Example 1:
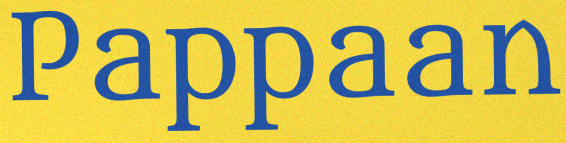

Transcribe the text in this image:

Pappaan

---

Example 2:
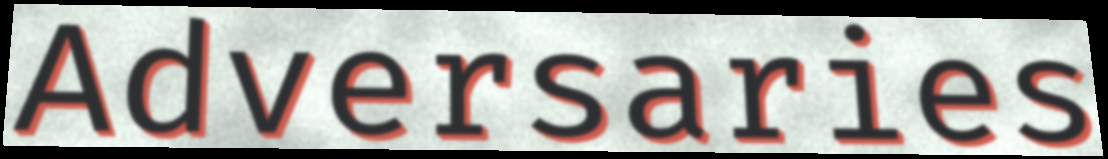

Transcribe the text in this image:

Adversaries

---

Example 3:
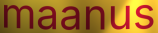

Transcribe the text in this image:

maanus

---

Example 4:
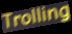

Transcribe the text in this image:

Trolling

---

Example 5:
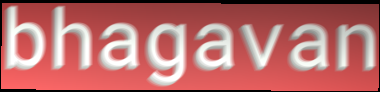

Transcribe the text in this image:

bhagavan